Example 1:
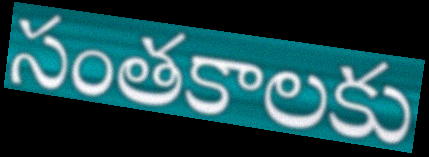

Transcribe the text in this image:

సంతకాలకు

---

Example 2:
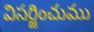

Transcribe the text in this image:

విసర్జించుము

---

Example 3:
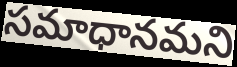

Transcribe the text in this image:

సమాధానమని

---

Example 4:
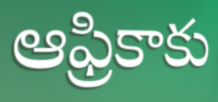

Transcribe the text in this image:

ఆఫ్రికాకు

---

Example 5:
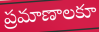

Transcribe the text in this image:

ప్రమాణాలకూ